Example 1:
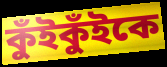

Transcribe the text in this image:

কুঁইকুঁইকে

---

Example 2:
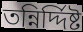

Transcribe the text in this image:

তন্নির্দ্দিষ্ট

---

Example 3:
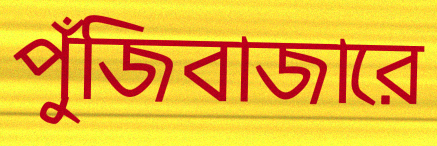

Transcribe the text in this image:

পুঁজিবাজারে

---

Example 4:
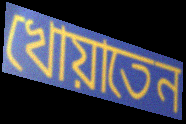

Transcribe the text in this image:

খোয়াতেন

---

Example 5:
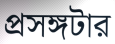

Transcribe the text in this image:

প্রসঙ্গটার